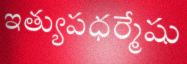
ఇత్యుపధర్మేషు